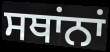
ਸਥਾਂਨਾਂ